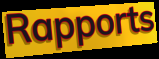
Rapports